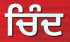
ਚਿੰਦ